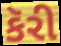
કૅરી